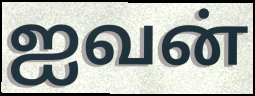
ஐவன்